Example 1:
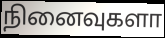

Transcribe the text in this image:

நினைவுகளா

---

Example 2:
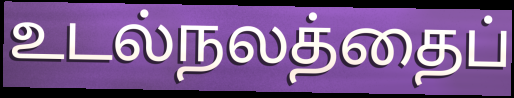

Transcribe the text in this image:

உடல்நலத்தைப்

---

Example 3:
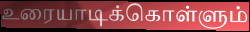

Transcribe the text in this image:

உரையாடிக்கொள்ளும்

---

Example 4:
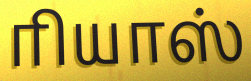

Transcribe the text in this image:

ரியாஸ்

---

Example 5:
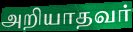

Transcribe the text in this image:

அறியாதவர்